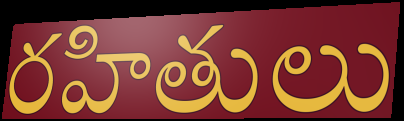
రహితులు